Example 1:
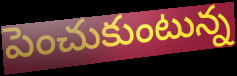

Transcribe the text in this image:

పెంచుకుంటున్న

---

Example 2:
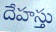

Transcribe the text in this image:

దేహస్తు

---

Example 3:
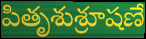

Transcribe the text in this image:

పితృశుశ్రూషణే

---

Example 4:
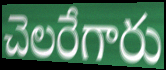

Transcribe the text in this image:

చెలరేగారు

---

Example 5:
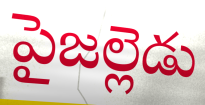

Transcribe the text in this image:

పైజల్లెడు